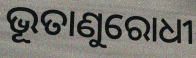
ଭୂତାଣୁରୋଧୀ